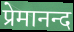
प्रेमानन्द